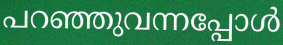
പറഞ്ഞുവന്നപ്പോൾ